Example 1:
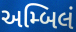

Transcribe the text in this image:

અમ્બિલં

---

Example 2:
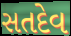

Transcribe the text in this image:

સતદેવ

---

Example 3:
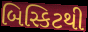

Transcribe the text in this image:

બિસ્કિટથી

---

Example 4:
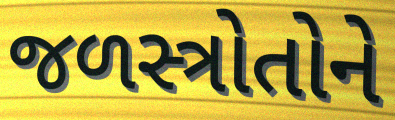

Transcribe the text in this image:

જળસ્ત્રોતોને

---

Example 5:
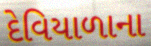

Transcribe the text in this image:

દેવિયાળાના